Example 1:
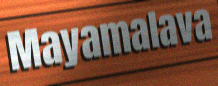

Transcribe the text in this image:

Mayamalava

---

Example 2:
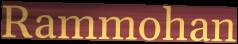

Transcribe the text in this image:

Rammohan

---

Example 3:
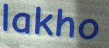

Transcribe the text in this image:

lakho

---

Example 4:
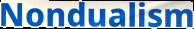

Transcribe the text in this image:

Nondualism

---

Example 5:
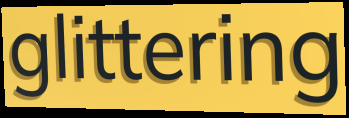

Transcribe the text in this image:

glittering